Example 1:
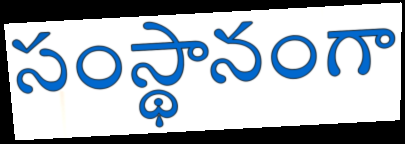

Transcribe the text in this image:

సంస్థానంగా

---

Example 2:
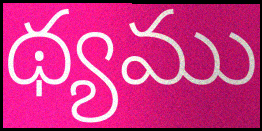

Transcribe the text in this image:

థ్యము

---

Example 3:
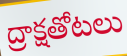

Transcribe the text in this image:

ద్రాక్షతోటలు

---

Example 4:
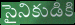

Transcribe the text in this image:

సైనికుడికి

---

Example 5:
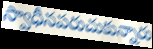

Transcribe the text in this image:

స్వాధీనపరుచుకున్నారు